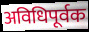
अविधिपूर्वक